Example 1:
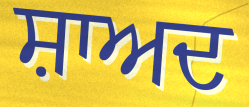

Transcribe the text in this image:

ਸ਼ਾਅਦ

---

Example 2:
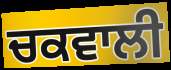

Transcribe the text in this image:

ਚਕਵਾਲੀ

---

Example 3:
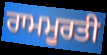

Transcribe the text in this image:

ਰਾਮਮੂਰਤੀ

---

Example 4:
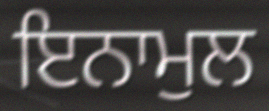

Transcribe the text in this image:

ਇਨਾਮੁਲ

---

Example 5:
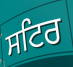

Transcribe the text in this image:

ਸਟਿਰ